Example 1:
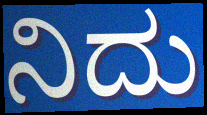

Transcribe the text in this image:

ನಿದು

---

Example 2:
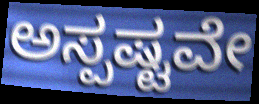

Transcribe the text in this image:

ಅಸ್ಪಷ್ಟವೇ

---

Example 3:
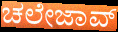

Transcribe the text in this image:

ಚಲೇಜಾವ್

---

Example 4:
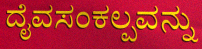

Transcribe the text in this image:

ದೈವಸಂಕಲ್ಪವನ್ನು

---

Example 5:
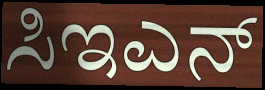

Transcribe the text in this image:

ಸಿಇಎನ್